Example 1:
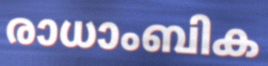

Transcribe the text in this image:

രാധാംബിക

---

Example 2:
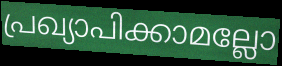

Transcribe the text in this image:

പ്രഖ്യാപിക്കാമല്ലോ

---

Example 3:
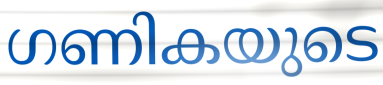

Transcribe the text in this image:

ഗണികയുടെ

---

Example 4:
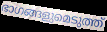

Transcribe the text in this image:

ഭാഗങ്ങളുമെടുത്ത്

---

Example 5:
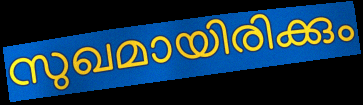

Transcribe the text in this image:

സുഖമായിരിക്കും